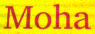
Moha